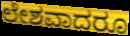
ಲೇಶವಾದರೂ